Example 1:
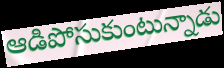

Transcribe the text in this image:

ఆడిపోసుకుంటున్నాడు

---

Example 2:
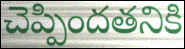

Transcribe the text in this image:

చెప్పిందతనికి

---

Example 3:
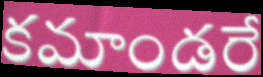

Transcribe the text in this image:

కమాండరే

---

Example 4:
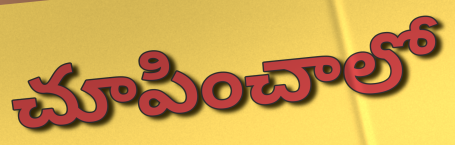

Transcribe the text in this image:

చూపించాలో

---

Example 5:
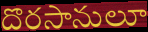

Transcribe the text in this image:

దొరసానులూ